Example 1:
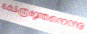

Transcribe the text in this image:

ക്ഷേത്രജ്ഞനെന്നു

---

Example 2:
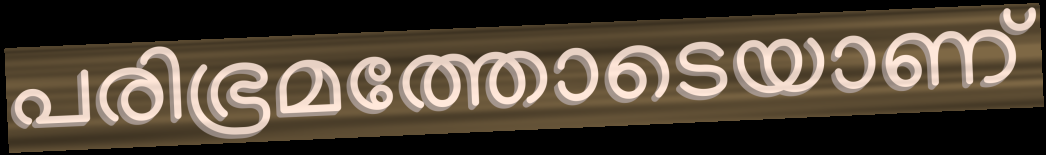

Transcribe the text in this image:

പരിഭ്രമത്തോടെയാണ്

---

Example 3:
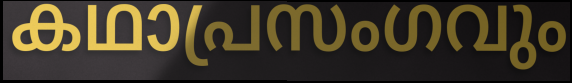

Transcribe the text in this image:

കഥാപ്രസംഗവും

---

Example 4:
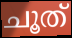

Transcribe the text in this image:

ചൂത്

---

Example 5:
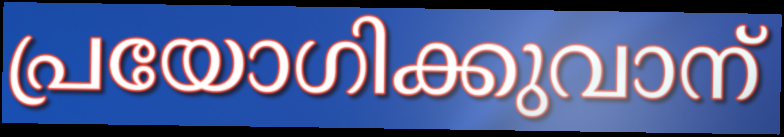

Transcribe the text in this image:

പ്രയോഗിക്കുവാന്